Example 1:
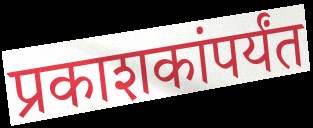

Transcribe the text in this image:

प्रकाशकांपर्यंत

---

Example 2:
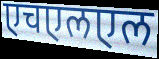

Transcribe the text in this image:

एचएलएल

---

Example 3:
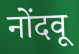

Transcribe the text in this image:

नोंदवू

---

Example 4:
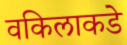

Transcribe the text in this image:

वकिलाकडे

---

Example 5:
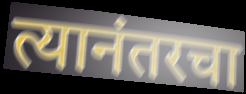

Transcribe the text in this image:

त्यानंतरचा